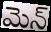
మెన్